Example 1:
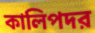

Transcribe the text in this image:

কালিপদর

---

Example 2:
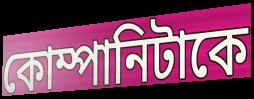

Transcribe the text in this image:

কোম্পানিটাকে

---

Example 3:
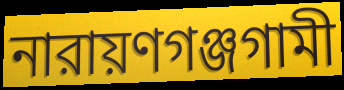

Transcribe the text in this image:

নারায়ণগঞ্জগামী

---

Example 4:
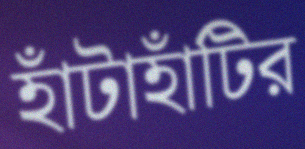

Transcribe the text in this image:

হাঁটাহাঁটির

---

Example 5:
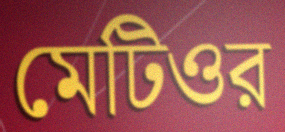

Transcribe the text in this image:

মেটিওর